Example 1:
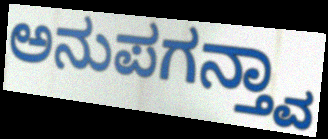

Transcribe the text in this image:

ಅನುಪಗನ್ತ್ವಾ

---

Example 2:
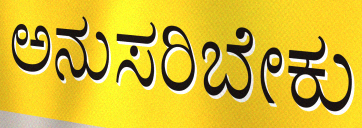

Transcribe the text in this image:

ಅನುಸರಿಬೇಕು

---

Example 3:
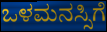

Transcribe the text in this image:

ಒಳಮನಸ್ಸಿಗೆ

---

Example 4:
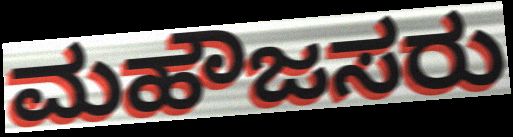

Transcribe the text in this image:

ಮಹೌಜಸರು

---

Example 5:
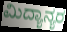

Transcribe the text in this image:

ಮಿದ್ಯಾನ್ಯರ